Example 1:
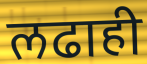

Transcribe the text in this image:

लढाही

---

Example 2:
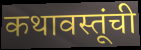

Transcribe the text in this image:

कथावस्तूंची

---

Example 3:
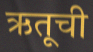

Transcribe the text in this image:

ऋतूची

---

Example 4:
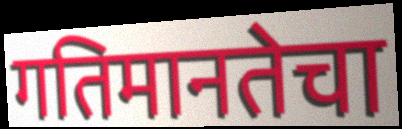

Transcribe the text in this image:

गतिमानतेचा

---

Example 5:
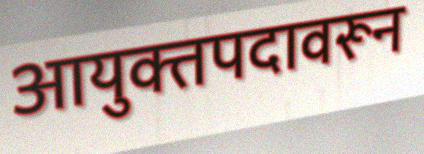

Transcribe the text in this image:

आयुक्तपदावरून